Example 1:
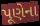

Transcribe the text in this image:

પૂણેના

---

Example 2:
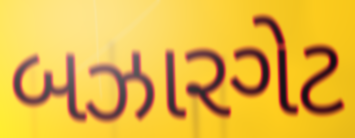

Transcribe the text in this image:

બઝારગેટ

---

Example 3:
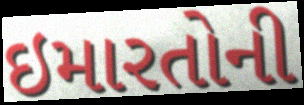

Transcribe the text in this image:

ઇમારતોની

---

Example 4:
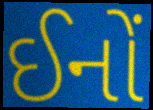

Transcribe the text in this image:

ઈનોં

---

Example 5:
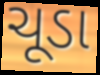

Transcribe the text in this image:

ચૂડા